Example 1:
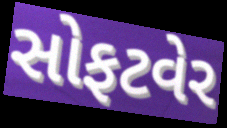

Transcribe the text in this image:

સોફટવેર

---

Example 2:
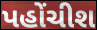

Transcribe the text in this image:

પહોંચીશ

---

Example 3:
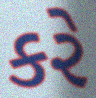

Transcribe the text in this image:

કરે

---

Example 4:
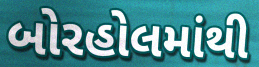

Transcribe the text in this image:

બોરહોલમાંથી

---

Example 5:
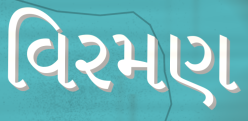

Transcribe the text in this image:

વિરમણ